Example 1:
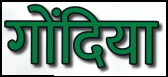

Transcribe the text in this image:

गोंदिया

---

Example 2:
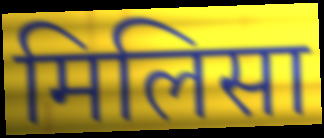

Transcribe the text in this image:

मिलिसा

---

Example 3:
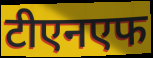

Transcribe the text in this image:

टीएनएफ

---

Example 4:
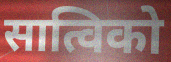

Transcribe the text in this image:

सात्विको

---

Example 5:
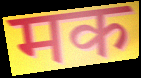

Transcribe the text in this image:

मक